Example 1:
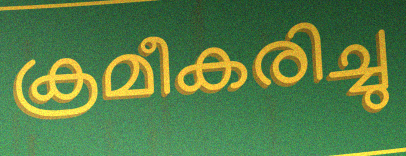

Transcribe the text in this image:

ക്രമീകരിച്ചു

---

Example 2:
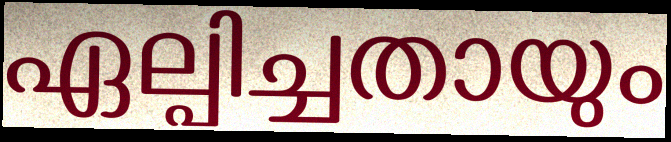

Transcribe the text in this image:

ഏല്പിച്ചതായും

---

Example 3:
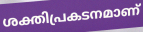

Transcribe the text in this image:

ശക്തിപ്രകടനമാണ്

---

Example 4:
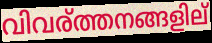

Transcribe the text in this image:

വിവര്ത്തനങ്ങളില്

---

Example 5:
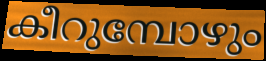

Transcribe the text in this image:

കീറുമ്പോഴും